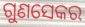
ଗୁଣସେକର